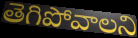
తెగిపోవాలని